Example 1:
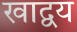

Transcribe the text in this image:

खाद्वय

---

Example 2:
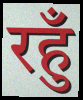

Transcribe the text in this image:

रहुँ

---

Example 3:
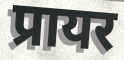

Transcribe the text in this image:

प्रायर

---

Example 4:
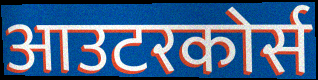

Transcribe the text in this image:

आउटरकोर्स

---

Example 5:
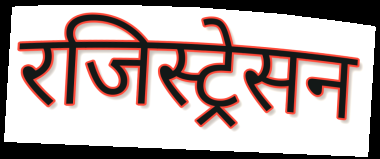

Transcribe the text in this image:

रजिस्ट्रेसन